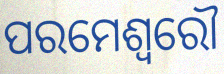
ପରମେଶ୍ଵରୌ